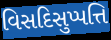
વિસદિસુપ્પત્તિ